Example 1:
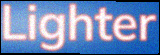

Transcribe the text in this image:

Lighter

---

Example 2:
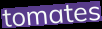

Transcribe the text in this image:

tomates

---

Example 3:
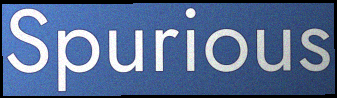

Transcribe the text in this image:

Spurious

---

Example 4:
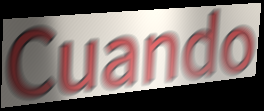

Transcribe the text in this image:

Cuando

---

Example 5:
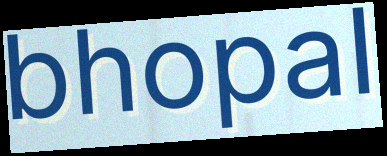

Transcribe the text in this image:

bhopal